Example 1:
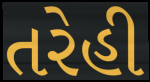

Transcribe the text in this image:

તરેહી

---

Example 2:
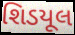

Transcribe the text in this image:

શિડયૂલ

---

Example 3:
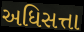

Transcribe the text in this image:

અધિસત્તા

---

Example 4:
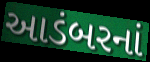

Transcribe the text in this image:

આડંબરનાં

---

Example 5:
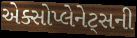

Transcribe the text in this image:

એક્સોપ્લેનેટ્સની